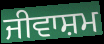
ਜੀਵਾਸ਼ਮ